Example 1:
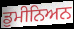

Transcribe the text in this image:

ਡੁਮੀਨਿਅਨ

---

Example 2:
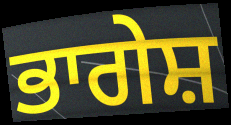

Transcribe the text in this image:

ਭਾਗੇਸ਼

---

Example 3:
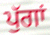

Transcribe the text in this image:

ਪੁੱਗਾਂ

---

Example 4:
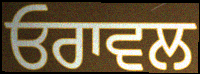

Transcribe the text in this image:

ਓਰਾਵਲ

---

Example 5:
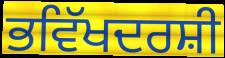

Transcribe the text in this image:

ਭਵਿੱਖਦਰਸ਼ੀ